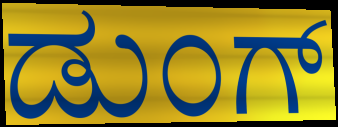
ಡುಂಗ್